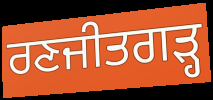
ਰਣਜੀਤਗੜ੍ਹ